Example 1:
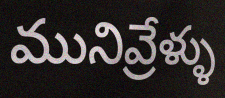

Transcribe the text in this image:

మునివ్రేళ్ళు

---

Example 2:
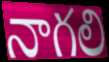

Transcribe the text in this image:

నాగలి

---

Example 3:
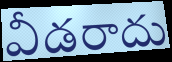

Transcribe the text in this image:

వీడరాదు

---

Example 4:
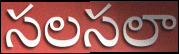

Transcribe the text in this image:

సలసలా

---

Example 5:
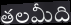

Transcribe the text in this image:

తలమీది